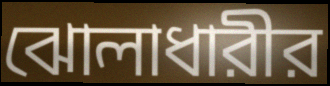
ঝোলাধারীর